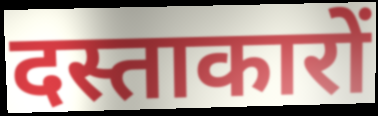
दस्ताकारों